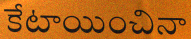
కేటాయించినా